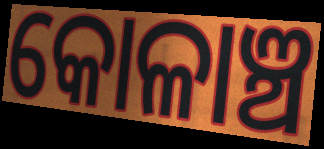
କୋଳାଞ୍ଚ